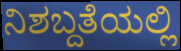
ನಿಶಬ್ದತೆಯಲ್ಲಿ